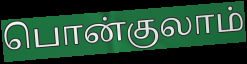
பொன்குலாம்